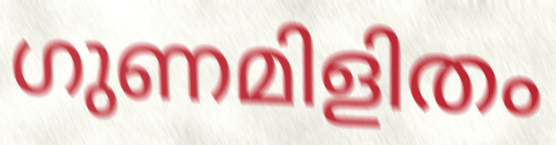
ഗുണമിളിതം